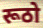
रूठो